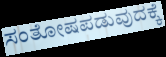
ಸಂತೋಷಪಡುವುದಕ್ಕೆ